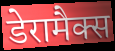
डेरामैक्स